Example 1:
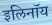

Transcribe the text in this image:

इलिनॉय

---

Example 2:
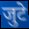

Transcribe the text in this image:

जुटे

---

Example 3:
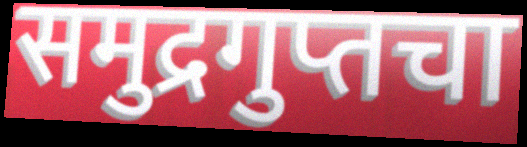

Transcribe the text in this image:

समुद्रगुप्तचा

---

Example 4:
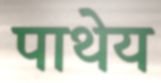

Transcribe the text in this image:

पाथेय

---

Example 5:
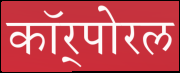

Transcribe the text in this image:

कॉर्पोरल